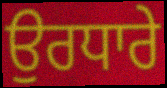
ਉਰਧਾਰੇ